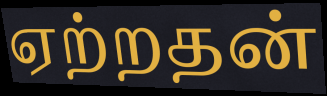
ஏற்றதன்